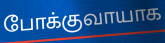
போக்குவாயாக